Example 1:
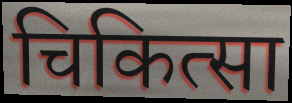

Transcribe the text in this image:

चिकित्सा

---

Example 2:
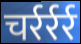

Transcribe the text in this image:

चर्रर्रर्र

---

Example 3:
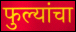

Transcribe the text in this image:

फुल्यांचा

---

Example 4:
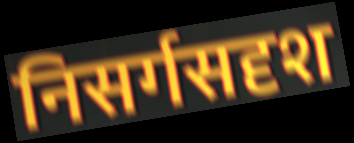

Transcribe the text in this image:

निसर्गसदृश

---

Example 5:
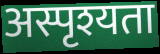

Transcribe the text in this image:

अस्पृश्यता